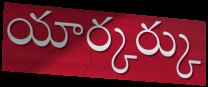
యార్కర్కు